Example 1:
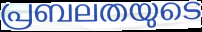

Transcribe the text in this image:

പ്രബലതയുടെ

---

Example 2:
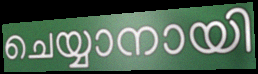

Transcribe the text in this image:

ചെയ്യാനായി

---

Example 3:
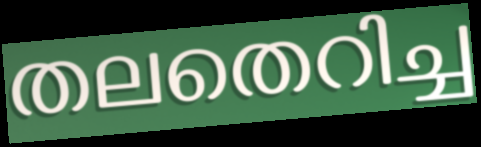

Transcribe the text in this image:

തലതെറിച്ച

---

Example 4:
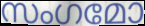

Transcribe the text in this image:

സംഗമോ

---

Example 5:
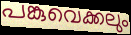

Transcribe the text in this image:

പങ്കുവെക്കലും